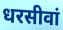
धरसीवां